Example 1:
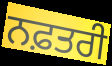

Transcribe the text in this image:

ਨਫ਼ਤਰੀ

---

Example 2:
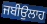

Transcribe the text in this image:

ਜਬੀਉਲਾਹ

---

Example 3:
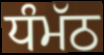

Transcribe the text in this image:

ਧੰਮੱਠ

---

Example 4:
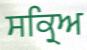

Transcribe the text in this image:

ਸਕ੍ਰਿਅ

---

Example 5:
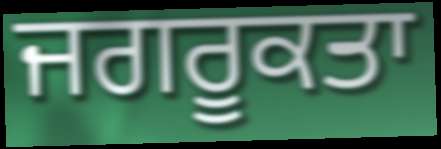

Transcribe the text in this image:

ਜਗਰੂਕਤਾ